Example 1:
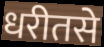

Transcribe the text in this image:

धरीतसे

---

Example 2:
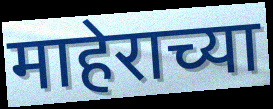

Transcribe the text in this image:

माहेराच्या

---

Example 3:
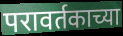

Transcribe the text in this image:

परावर्तकाच्या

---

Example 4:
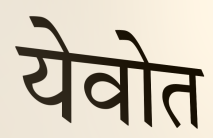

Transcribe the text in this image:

येवोत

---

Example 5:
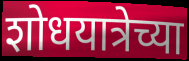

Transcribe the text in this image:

शोधयात्रेच्या